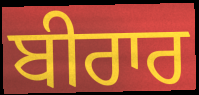
ਬੀਰਾਰ